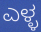
ಎಳ್ಳ